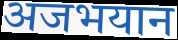
अजभयान